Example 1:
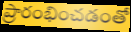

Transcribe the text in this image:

ప్రారంభించడంతో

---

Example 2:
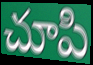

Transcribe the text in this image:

చూపి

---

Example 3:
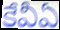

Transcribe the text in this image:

కేవీఏ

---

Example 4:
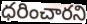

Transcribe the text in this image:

ధరించారని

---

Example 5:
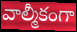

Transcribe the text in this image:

వాల్మీకంగా